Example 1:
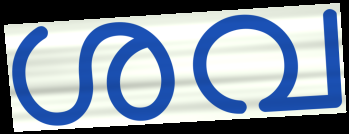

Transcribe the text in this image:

ശവ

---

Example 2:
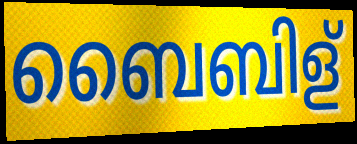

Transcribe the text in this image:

ബൈബിള്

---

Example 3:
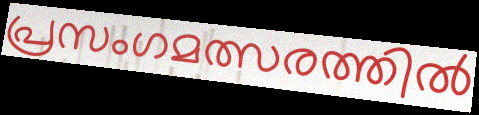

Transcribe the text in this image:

പ്രസംഗമത്സരത്തിൽ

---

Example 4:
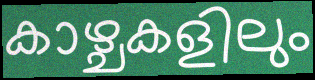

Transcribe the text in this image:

കാഴ്ചകളിലും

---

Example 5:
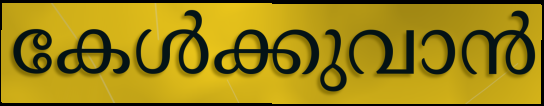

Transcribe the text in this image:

കേൾക്കുവാൻ